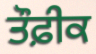
ਤੌਫ਼ੀਕ